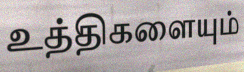
உத்திகளையும்